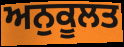
ਅਨੁਕੂਲਤ